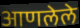
आणलेले